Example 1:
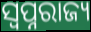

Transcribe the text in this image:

ସ୍ୱପ୍ନରାଜ୍ୟ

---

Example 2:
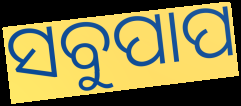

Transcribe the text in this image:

ସବୁପାପ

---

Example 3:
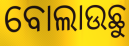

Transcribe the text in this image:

ବୋଲାଉଛୁ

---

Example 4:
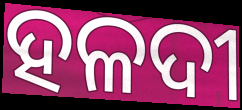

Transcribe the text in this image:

ହଳଦୀ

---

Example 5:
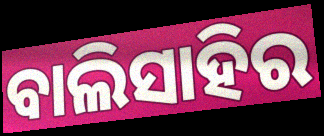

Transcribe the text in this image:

ବାଲିସାହିର